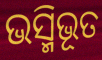
ଭସ୍ମିଭୂତ